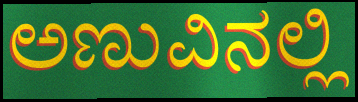
ಅಣುವಿನಲ್ಲಿ